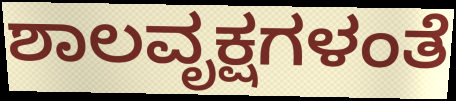
ಶಾಲವೃಕ್ಷಗಳಂತೆ